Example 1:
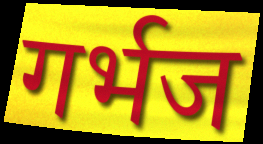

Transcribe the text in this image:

गर्भज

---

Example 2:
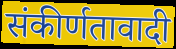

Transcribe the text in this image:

संकीर्णतावादी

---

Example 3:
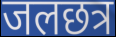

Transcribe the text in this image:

जलछत्र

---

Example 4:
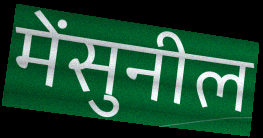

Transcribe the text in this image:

मेंसुनील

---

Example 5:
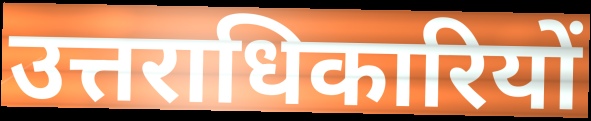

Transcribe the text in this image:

उत्तराधिकारियों